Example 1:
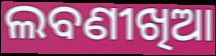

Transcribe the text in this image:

ଲବଣୀଖିଆ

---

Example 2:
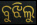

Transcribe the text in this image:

ବୁଝିଲୁ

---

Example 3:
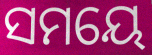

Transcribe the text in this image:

ସମୟେ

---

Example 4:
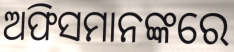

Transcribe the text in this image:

ଅଫିସମାନଙ୍କରେ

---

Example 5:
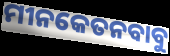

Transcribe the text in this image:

ମୀନକେତନବାବୁ